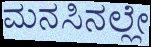
ಮನಸಿನಲ್ಲೇ